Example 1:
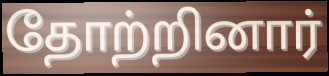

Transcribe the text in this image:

தோற்றினார்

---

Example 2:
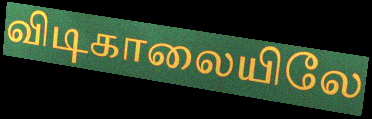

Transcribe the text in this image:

விடிகாலையிலே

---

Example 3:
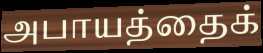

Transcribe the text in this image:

அபாயத்தைக்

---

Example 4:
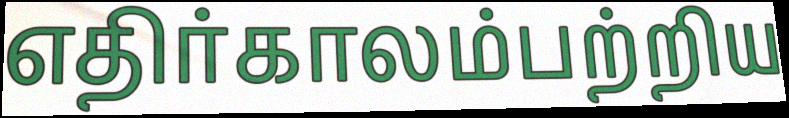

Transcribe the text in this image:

எதிர்காலம்பற்றிய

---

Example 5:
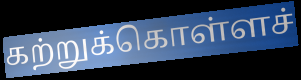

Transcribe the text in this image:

கற்றுக்கொள்ளச்